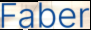
Faber